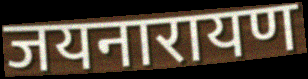
जयनारायण